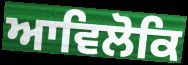
ਆਵਿਲੋਕਿ